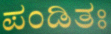
ಪಂಡಿತಃ